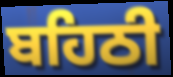
ਬਹਿਠੀ